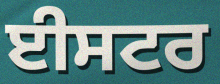
ਈਸਟਰ